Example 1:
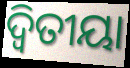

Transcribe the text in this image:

ଦ୍ଵିତୀୟା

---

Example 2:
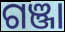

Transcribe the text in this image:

ଗଞ୍ଜା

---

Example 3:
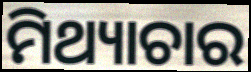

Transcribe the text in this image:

ମିଥ୍ୟାଚାର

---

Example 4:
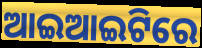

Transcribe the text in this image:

ଆଇଆଇଟିରେ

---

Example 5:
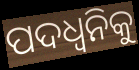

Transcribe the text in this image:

ପଦଧ୍ୱନିକୁ